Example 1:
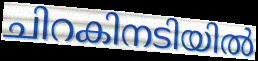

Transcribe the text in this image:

ചിറകിനടിയിൽ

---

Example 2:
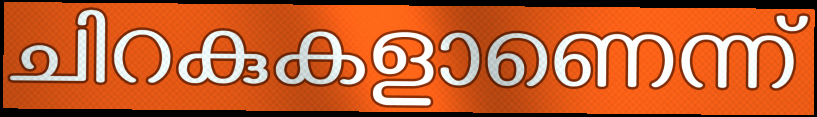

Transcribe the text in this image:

ചിറകുകളാണെന്ന്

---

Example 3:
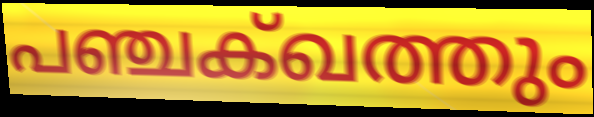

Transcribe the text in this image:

പഞ്ചക്ഖത്തും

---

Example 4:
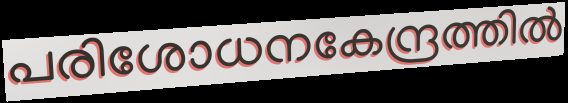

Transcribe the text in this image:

പരിശോധനകേന്ദ്രത്തിൽ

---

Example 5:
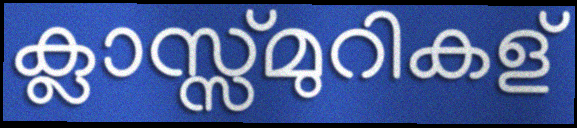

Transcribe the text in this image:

ക്ലാസ്സ്മുറികള്